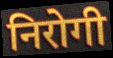
निरोगी